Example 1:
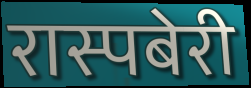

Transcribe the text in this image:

रास्पबेरी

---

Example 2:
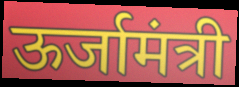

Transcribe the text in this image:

ऊर्जामंत्री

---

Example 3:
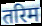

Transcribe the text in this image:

तरिम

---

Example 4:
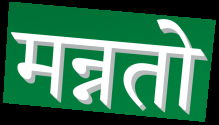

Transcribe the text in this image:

मन्नतो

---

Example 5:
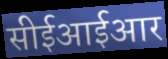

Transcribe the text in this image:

सीईआईआर